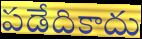
పడేదికాదు